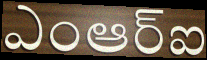
ఎంఆర్ఐ